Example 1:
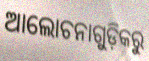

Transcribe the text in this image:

ଆଲୋଚନାଗୁଡ଼ିକରୁ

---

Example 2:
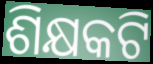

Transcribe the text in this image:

ଶିକ୍ଷକଟି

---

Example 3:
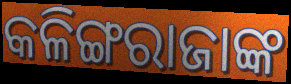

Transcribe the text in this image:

କଳିଙ୍ଗରାଜାଙ୍କ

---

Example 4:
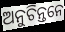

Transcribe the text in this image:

ଅନୁଚିନ୍ତନେ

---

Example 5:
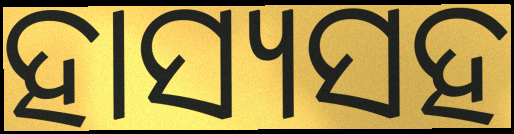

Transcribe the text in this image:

ହାସ୍ୟସହ